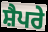
ਸ਼ੈਪਰੇ